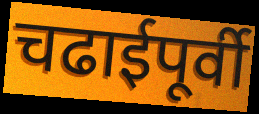
चढाईपूर्वी